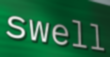
swell